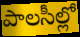
పాలసీల్లో